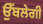
ਉੱਬਲੇਗੀ